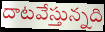
దాటవేస్తున్నది